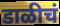
डाळीचं